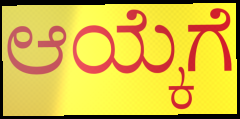
ಆಯ್ಕೆಗೆ